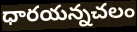
ధారయన్నచలం